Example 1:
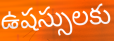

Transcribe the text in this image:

ఉషస్సులకు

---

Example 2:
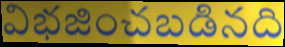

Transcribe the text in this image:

విభజించబడినది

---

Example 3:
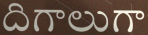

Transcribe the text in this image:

దిగాలుగా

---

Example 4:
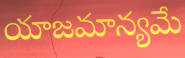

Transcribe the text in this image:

యాజమాన్యమే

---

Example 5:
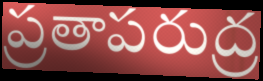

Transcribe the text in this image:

ప్రతాపరుద్ర